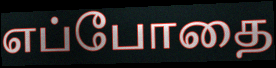
எப்போதை